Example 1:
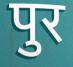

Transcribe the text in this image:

पुर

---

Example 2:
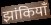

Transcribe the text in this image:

झांकियाँ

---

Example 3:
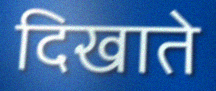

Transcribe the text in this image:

दिखाते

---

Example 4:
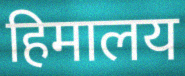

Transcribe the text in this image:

हिमालय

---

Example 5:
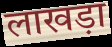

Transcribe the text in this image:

लाखड़ा